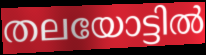
തലയോട്ടിൽ